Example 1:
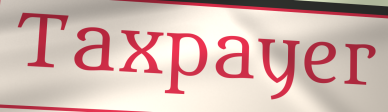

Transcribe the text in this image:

Taxpayer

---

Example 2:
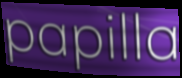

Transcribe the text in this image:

papilla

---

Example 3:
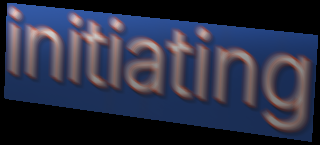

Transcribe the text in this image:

initiating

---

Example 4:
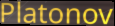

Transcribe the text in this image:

Platonov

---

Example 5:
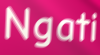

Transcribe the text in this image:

Ngati